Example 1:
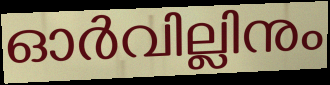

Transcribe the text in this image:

ഓർവില്ലിനും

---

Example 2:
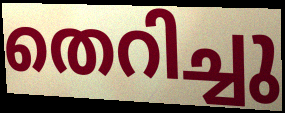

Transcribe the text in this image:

തെറിച്ചു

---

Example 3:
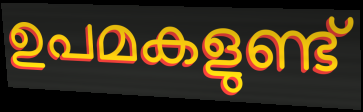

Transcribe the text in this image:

ഉപമകളുണ്ട്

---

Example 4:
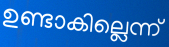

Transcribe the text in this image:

ഉണ്ടാകില്ലെന്ന്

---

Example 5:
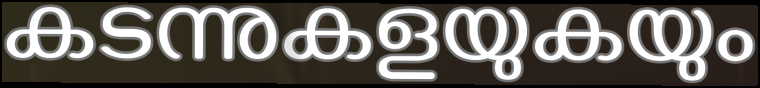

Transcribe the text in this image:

കടന്നുകളയുകയും